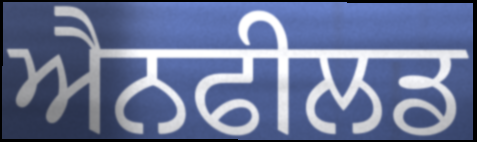
ਐਨਫੀਲਡ